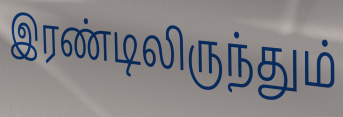
இரண்டிலிருந்தும்